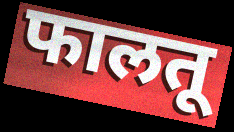
फालतू